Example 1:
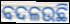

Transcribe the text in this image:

ବଦଳଉଛି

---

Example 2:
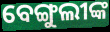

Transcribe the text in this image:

ବେଙ୍ଗୁଲୀଙ୍କ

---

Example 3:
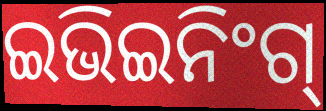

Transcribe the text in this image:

ଇଭିଇନିଂଗ୍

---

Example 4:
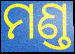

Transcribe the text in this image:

ମଣ୍ଡ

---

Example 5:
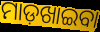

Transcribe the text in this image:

ମାଡ଼ଖାଇବା